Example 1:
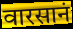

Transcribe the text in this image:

वारसानं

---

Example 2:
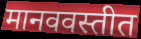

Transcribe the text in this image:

मानववस्तीत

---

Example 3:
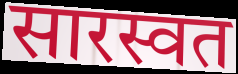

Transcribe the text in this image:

सारस्वत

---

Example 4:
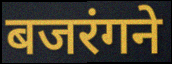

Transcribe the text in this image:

बजरंगने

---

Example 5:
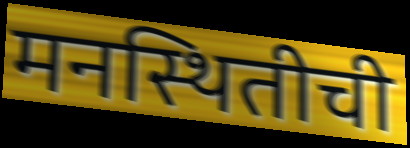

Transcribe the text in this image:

मनस्थितीची